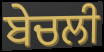
ਬੇਚਲੀ